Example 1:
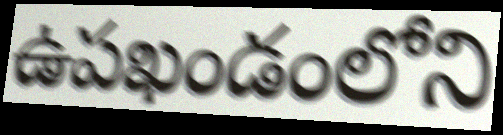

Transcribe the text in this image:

ఉపఖండంలోని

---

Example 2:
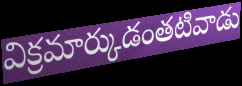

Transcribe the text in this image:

విక్రమార్కుడంతటివాడు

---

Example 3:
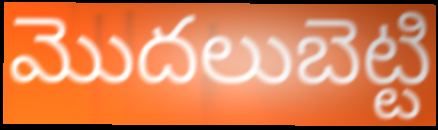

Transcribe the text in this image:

మొదలుబెట్టి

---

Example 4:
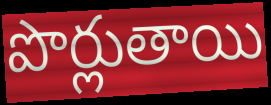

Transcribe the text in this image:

పొర్లుతాయి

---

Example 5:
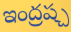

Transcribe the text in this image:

ఇంద్రష్చ